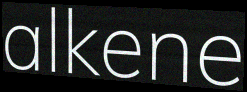
alkene